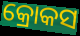
କ୍ରୋକସ